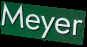
Meyer